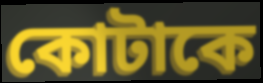
কোটাকে